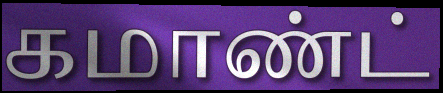
கமாண்ட்